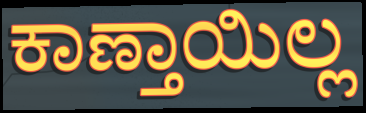
ಕಾಣ್ತಾಯಿಲ್ಲ